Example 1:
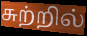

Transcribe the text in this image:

சுற்றில்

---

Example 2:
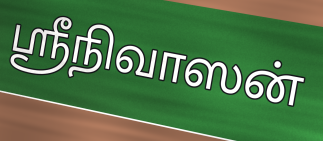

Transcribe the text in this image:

ஸ்ரீநிவாஸன்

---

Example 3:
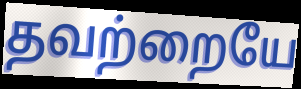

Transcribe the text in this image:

தவற்றையே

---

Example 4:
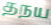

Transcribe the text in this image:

தநய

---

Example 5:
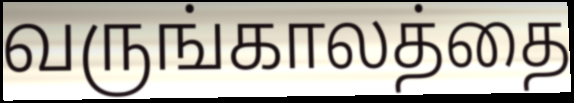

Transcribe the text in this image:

வருங்காலத்தை